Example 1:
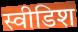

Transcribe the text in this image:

स्वीडिश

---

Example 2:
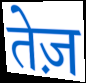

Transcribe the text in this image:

तेज़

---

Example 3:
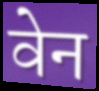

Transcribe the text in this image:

वेन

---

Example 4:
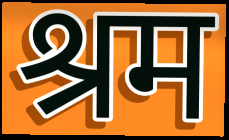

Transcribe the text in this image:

श्रम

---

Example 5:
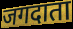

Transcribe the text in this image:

जगदाता